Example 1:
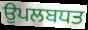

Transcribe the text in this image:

ਉਪਲਬਧਤ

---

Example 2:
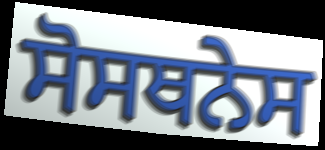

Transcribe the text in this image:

ਸੋਸਥਨੇਸ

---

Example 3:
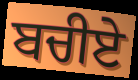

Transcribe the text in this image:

ਬਚੀਏ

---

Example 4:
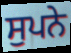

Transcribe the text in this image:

ਸੁਪਨੇ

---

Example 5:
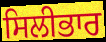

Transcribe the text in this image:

ਸਿਲੀਭਾਰ